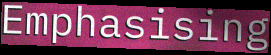
Emphasising